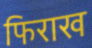
फिराख